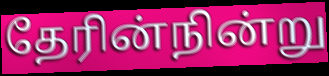
தேரின்நின்று